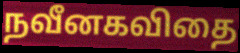
நவீனகவிதை